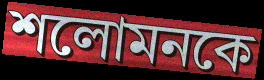
শলোমনকে